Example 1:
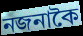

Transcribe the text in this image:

নজনাকৈ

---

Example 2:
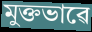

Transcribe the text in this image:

মুক্তভাৱে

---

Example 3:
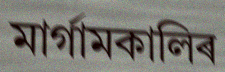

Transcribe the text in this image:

মাৰ্গামকালিৰ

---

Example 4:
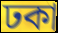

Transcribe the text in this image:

ঢকা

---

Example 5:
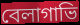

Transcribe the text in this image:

বেলাগাভি